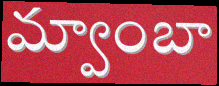
మ్వాంబా